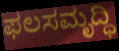
ಫಲಸಮೃದ್ಧಿ